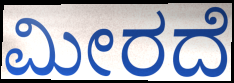
ಮೀರದೆ